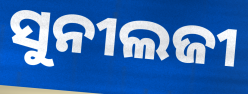
ସୁନୀଲଜୀ